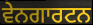
ਵੇਨਗਾਰਟਨ